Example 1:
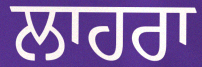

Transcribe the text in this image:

ਲਾਹਰਾ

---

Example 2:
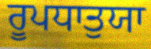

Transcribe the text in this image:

ਰੂਪਧਾਤੁਯਾ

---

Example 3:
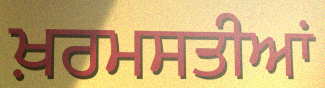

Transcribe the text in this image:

ਖ਼ਰਮਸਤੀਆਂ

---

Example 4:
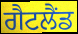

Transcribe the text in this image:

ਗੈਟਲੈਂਡ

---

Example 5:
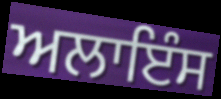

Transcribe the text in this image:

ਅਲਾਇੰਸ